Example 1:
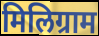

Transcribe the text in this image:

मिलिग्राम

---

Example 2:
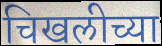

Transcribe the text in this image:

चिखलीच्या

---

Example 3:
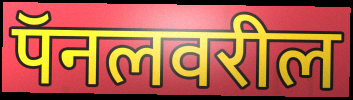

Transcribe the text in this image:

पॅनलवरील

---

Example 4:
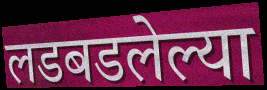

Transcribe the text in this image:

लडबडलेल्या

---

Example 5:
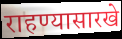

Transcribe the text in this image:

राहण्यासारखे